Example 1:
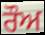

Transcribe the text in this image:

ਰੌਅ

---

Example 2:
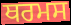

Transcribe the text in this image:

ਥਰਮਸ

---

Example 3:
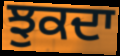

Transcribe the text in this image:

ਝੁਕਦਾ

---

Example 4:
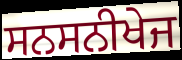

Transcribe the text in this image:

ਸਨਸਨੀਖੇਜ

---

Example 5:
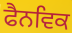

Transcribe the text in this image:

ਫੈਨਵਿਕ